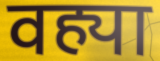
वह्या